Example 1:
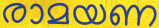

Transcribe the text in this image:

രാമയണ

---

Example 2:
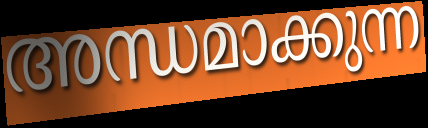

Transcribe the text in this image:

അന്ധമാക്കുന്ന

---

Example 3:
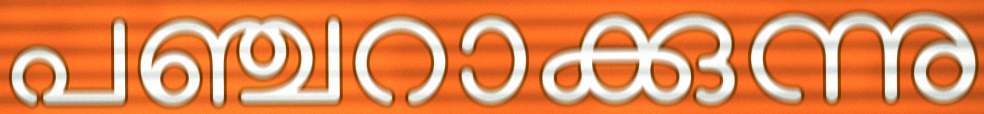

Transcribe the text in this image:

പഞ്ചറാക്കുന്നു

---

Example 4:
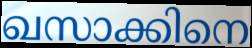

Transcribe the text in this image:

ഖസാക്കിനെ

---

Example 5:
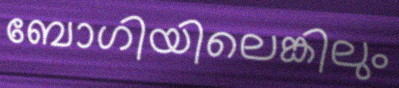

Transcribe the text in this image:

ബോഗിയിലെങ്കിലും